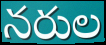
నరుల